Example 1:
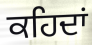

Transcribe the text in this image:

ਕਹਿਦਾਂ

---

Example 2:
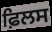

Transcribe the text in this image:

ਫ਼ਿਲਸ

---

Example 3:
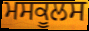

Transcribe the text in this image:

ਮਸਕੂਲਸ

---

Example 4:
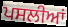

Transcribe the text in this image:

ਪਸਲੀਆਂ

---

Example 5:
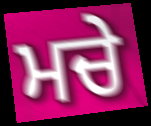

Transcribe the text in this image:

ਮਚੇ